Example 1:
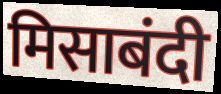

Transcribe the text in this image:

मिसाबंदी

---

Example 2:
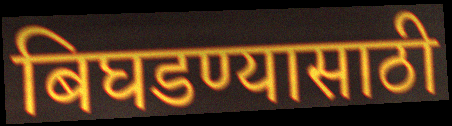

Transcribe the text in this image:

बिघडण्यासाठी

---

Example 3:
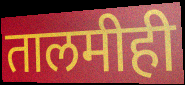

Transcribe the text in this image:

तालमीही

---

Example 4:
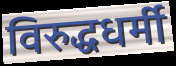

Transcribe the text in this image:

विरुद्धधर्मी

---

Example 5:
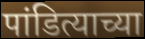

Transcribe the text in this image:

पांडित्याच्या